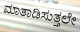
ಮಾತಾಡಿಸುತ್ತಲೇ